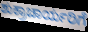
ಶುಕ್ರಾಚಾರ್ಯರಿಗೆ